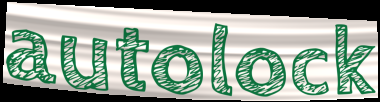
autolock